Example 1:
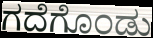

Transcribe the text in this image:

ಗದೆಗೊಂಡು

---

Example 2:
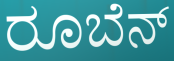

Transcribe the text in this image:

ರೂಬೆನ್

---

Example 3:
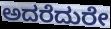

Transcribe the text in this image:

ಅದರೆದುರೇ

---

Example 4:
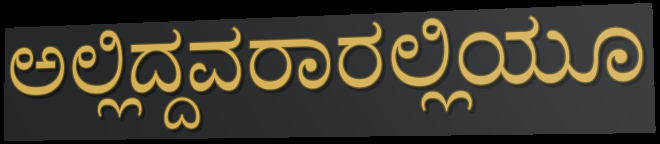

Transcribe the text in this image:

ಅಲ್ಲಿದ್ದವರಾರಲ್ಲಿಯೂ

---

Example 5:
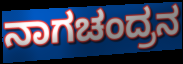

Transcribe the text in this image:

ನಾಗಚಂದ್ರನ